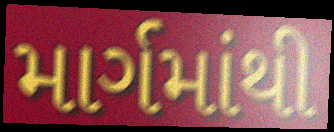
માર્ગમાંથી